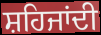
ਸ਼ਹਿਜਾਂਦੀ